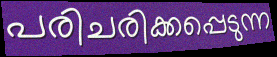
പരിചരിക്കപ്പെടുന്ന